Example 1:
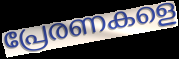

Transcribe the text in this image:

പ്രേരണകളെ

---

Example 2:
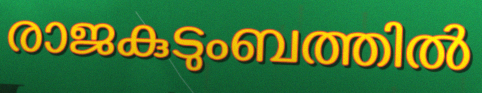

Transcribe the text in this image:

രാജകുടുംബത്തിൽ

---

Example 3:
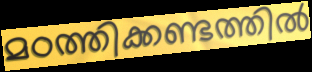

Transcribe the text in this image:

മഠത്തിക്കണ്ടത്തിൽ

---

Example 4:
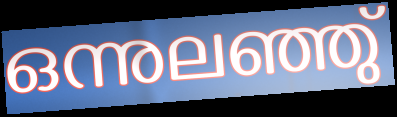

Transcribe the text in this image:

ഒന്നുലഞ്ഞു്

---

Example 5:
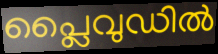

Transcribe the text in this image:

പ്ലൈവുഡിൽ